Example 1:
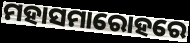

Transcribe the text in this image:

ମହାସମାରୋହରେ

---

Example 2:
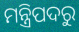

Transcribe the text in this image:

ମନ୍ତ୍ରିପଦରୁ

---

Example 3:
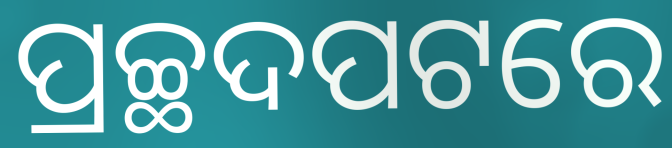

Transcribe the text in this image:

ପ୍ରଚ୍ଛଦପଟରେ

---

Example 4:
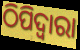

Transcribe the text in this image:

ଠିପିଦ୍ଵାରା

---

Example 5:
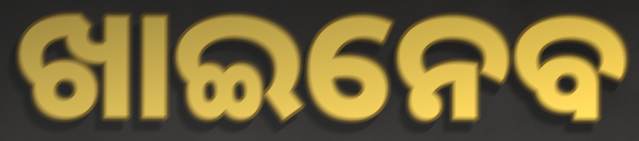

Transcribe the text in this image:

ଖାଇନେବ